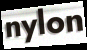
nylon